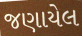
જણાયેલ